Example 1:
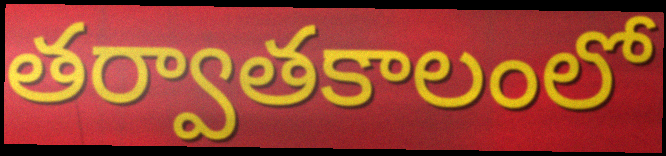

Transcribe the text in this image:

తర్వాతకాలంలో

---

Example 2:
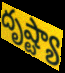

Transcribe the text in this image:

దృష్ట్యా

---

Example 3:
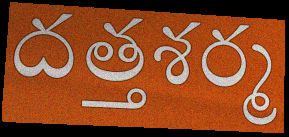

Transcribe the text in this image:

దత్తశర్మ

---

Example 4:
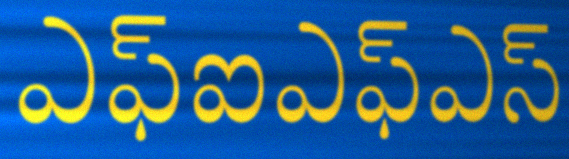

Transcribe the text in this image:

ఎఫ్ఐఎఫ్ఎస్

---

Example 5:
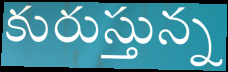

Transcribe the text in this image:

కురుస్తున్న